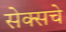
सेक्सचे